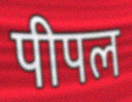
पीपल